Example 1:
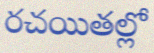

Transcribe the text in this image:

రచయితల్లో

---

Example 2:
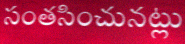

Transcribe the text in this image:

సంతసించునట్లు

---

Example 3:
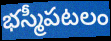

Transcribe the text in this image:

భస్మీపటలం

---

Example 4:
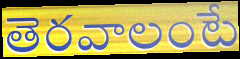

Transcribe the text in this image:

తెరవాలంటే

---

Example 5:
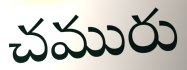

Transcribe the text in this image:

చమురు